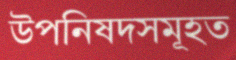
উপনিষদসমূহত